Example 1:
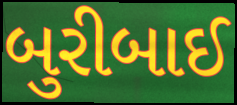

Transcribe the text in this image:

બુરીબાઈ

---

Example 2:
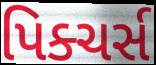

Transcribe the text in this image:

પિક્ચર્સ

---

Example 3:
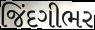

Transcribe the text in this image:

જિંદગીભર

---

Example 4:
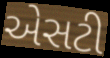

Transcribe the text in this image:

એસટી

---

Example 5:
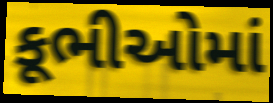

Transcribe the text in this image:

કૂભીઓમાં